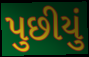
પુછીયું